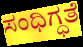
ಸಂಧಿಗ್ಧತೆ